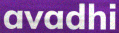
avadhi